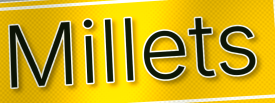
Millets